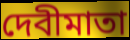
দেবীমাতা